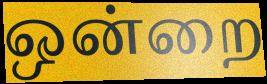
ஒன்றை